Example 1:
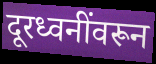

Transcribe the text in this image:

दूरध्वनींवरून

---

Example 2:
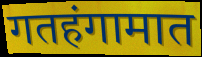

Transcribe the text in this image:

गतहंगामात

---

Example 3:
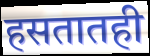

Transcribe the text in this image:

हसतातही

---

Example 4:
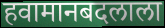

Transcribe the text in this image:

हवामानबदलाला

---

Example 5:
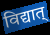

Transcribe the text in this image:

विद्यात्